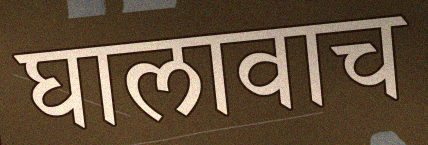
घालावाच